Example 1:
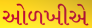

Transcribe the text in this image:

ઓળખીએ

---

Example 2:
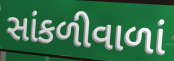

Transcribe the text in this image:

સાંકળીવાળાં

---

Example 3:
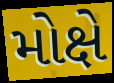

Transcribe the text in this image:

મોક્ષે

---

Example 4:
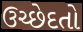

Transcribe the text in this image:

ઉચ્છેદતો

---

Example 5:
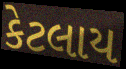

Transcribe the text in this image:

કેટલાય